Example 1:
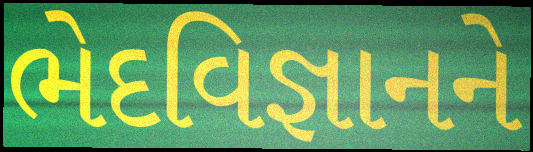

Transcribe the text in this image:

ભેદવિજ્ઞાનને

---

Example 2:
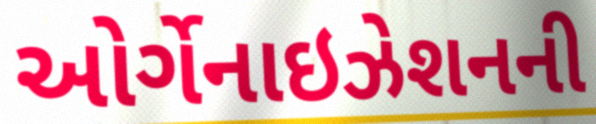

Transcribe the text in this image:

ઓર્ગેનાઇઝેશનની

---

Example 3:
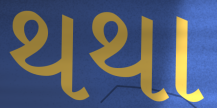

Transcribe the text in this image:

થથા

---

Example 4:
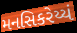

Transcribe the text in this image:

મનસિકરેય્યં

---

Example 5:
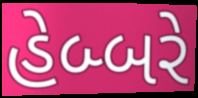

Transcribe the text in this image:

હેબ્બરે